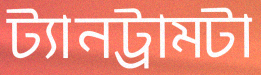
ট্যানট্রামটা